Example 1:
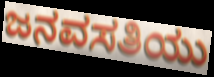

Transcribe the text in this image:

ಜನವಸತಿಯು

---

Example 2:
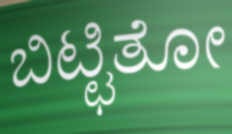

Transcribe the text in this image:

ಬಿಟ್ಟಿತೋ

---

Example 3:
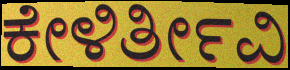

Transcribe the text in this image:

ಕೇಳಿರ್ತೀವಿ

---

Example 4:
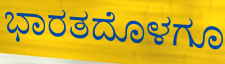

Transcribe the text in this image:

ಭಾರತದೊಳಗೂ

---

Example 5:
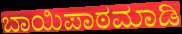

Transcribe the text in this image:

ಬಾಯಿಪಾಠಮಾಡಿ